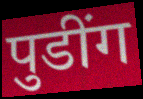
पुडींग